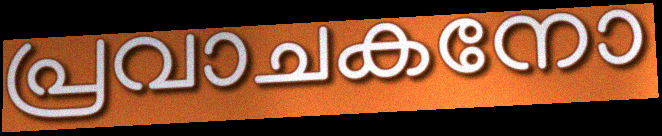
പ്രവാചകനോ